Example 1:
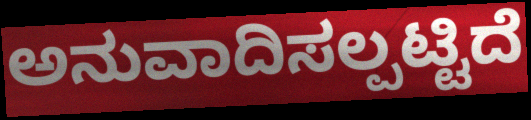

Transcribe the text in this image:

ಅನುವಾದಿಸಲ್ಪಟ್ಟಿದೆ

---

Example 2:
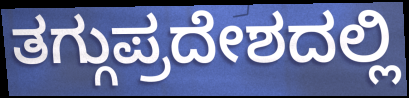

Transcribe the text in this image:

ತಗ್ಗುಪ್ರದೇಶದಲ್ಲಿ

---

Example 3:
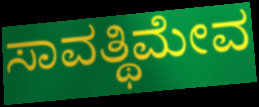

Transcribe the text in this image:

ಸಾವತ್ಥಿಮೇವ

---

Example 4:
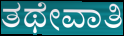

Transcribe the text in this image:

ತಥೇವಾತಿ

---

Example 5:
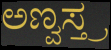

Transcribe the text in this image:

ಅಣ್ವಸ್ತ್ರ